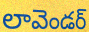
లావెండర్